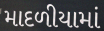
માદળીયામાં